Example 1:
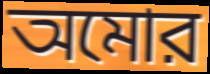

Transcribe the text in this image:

অমোর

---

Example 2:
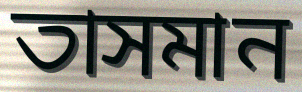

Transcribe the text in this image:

তাসমান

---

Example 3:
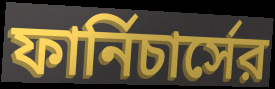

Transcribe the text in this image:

ফার্নিচার্সের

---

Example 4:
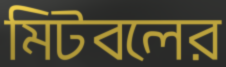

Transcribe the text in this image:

মিটবলের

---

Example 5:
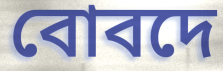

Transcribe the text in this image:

বোবদে